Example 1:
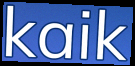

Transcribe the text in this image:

kaik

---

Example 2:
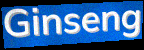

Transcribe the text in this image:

Ginseng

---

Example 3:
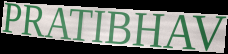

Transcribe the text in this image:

PRATIBHAV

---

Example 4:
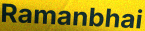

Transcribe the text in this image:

Ramanbhai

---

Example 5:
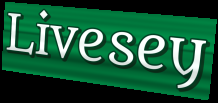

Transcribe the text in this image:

Livesey